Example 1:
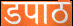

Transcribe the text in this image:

डपाठ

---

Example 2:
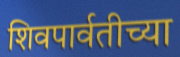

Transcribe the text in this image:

शिवपार्वतीच्या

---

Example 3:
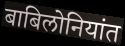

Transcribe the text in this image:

बाबिलोनियांत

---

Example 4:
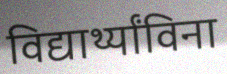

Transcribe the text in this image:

विद्यार्थ्यांविना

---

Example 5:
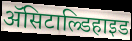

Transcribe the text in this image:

ॲसिटाल्डिहाइड